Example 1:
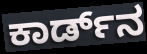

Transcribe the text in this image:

ಕಾರ್ಡ್‌ನ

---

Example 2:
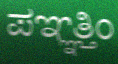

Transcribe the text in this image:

ಪಞ್ಞತ್ತಿಂ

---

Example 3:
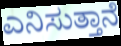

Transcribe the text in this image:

ಎನಿಸುತ್ತಾನೆ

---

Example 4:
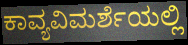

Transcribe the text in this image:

ಕಾವ್ಯವಿಮರ್ಶೆಯಲ್ಲಿ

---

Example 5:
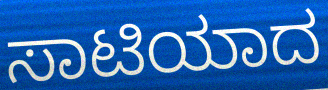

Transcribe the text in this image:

ಸಾಟಿಯಾದ